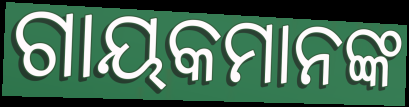
ଗାୟକମାନଙ୍କ